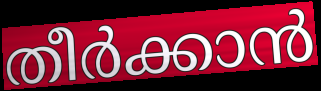
തീർക്കാൻ